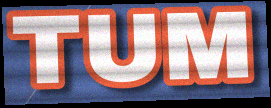
TUM